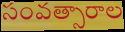
సంవత్సారాల